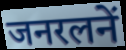
जनरलनें